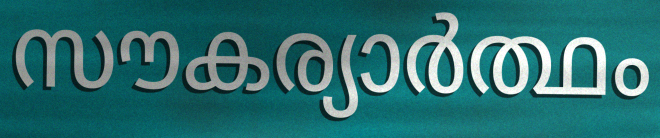
സൗകര്യാർത്ഥം